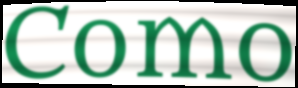
Como